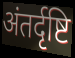
अंतर्दृष्टि